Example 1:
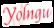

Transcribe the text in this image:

Yolngu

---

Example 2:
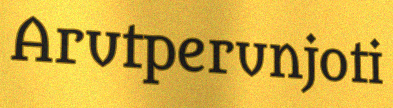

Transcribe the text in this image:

Arutperunjoti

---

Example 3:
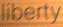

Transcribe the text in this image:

liberty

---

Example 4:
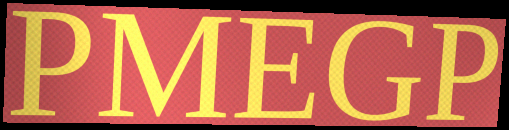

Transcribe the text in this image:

PMEGP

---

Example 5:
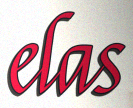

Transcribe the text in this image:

elas